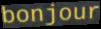
bonjour